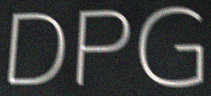
DPG